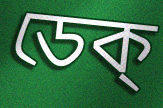
ডেক্